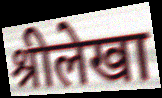
श्रीलेखा